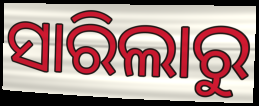
ସାରିଲାରୁ